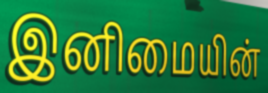
இனிமையின்